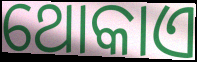
ଥୋକାଏ